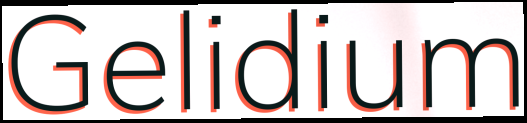
Gelidium